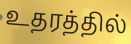
உதரத்தில்